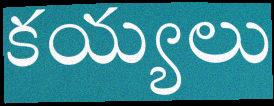
కయ్యలు